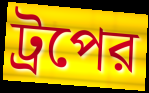
ট্রপের